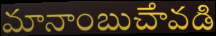
మానాంబుౘావడి